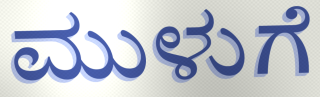
ಮುಳುಗೆ